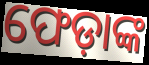
ଫେଡ଼ାଙ୍କ